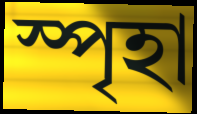
স্পৃহা